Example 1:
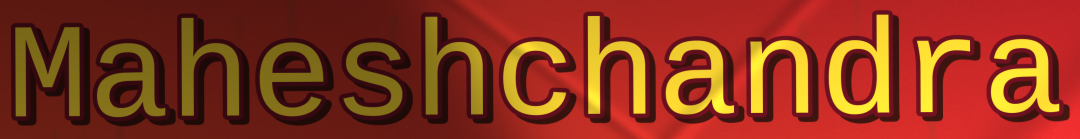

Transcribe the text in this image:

Maheshchandra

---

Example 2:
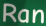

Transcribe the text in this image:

Ran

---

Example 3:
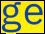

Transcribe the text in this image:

ge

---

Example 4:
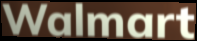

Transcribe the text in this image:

Walmart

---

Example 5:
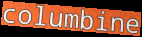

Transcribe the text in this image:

columbine